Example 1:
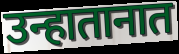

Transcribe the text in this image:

उन्हातानात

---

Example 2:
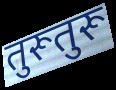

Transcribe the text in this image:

तुरूतुरू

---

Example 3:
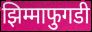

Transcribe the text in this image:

झिम्माफुगडी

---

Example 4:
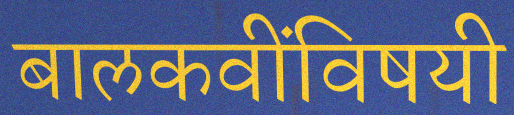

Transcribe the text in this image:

बालकवींविषयी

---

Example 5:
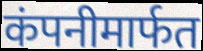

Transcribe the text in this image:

कंपनीमार्फत